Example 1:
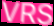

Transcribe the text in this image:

VRS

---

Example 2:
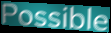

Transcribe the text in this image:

Possible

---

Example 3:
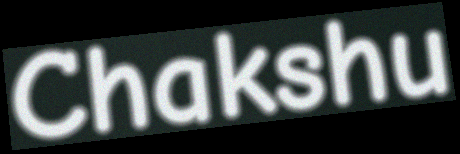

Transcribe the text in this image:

Chakshu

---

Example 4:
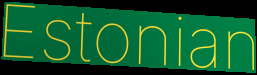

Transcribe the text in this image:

Estonian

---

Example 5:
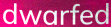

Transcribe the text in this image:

dwarfed